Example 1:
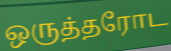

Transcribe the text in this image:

ஒருத்தரோட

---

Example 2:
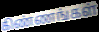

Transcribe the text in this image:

கிண்ணங்கள்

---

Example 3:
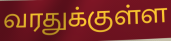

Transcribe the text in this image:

வரதுக்குள்ள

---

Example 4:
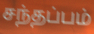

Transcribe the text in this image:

சந்தப்பம்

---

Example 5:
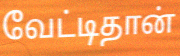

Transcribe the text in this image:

வேட்டிதான்